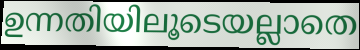
ഉന്നതിയിലൂടെയല്ലാതെ